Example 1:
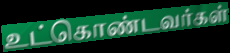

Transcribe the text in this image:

உட்கொண்டவர்கள்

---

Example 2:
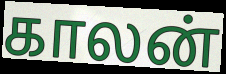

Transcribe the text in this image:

காலன்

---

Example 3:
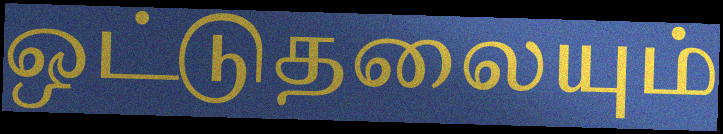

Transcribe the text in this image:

ஒட்டுதலையும்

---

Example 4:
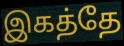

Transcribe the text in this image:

இகத்தே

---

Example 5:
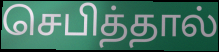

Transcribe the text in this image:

செபித்தால்